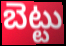
బెట్టు